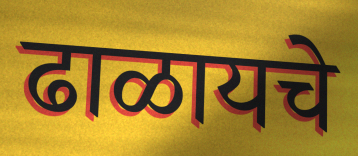
ढाळायचे